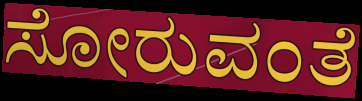
ಸೋರುವಂತೆ